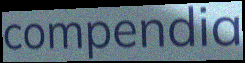
compendia